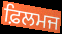
ਫ਼ਿਲਮਜ